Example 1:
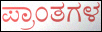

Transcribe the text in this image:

ಪ್ರಾಂತಗಳ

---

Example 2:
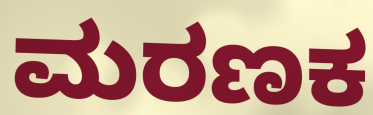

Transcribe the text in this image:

ಮರಣಕ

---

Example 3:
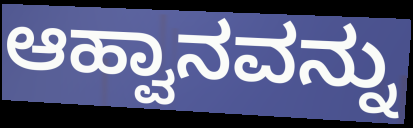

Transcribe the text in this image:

ಆಹ್ವಾನವನ್ನು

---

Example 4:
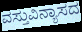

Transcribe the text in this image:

ವಸ್ತುವಿನ್ಯಾಸದ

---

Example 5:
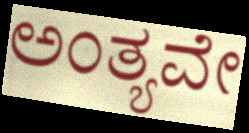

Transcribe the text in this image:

ಅಂತ್ಯವೇ